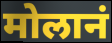
मोलानं